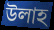
উলাহ